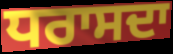
ਧਰਾਸਦਾ